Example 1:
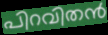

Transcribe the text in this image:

പിറവിതൻ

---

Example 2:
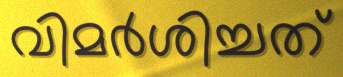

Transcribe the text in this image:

വിമർശിച്ചത്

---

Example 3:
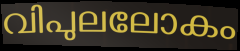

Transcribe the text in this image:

വിപുലലോകം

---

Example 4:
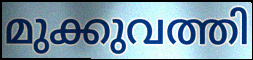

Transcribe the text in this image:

മുക്കുവത്തി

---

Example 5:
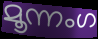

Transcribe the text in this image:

മൂന്നംഗ